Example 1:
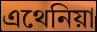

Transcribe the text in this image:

এথেনিয়া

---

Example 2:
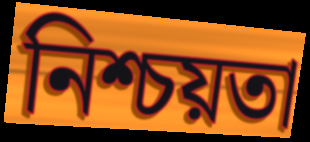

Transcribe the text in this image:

নিশ্চয়তা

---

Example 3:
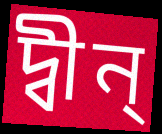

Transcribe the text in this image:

দ্বীন্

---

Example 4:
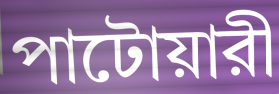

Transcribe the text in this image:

পাটোয়ারী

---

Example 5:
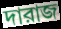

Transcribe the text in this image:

দারাজ